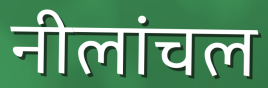
नीलांचल